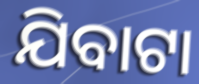
ଯିବାଟା